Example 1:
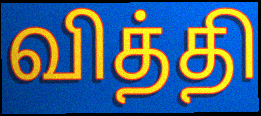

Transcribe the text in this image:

வித்தி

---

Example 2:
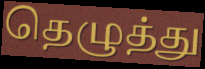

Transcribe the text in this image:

தெழுத்து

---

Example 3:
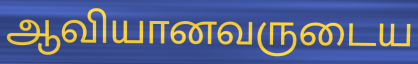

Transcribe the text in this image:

ஆவியானவருடைய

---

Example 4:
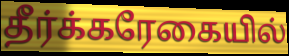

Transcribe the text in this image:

தீர்க்கரேகையில்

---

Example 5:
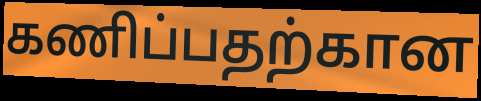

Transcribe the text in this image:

கணிப்பதற்கான